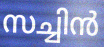
സച്ചിൻ